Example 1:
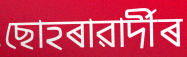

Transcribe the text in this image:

ছোহৰাৱাৰ্দীৰ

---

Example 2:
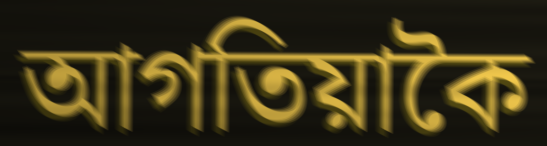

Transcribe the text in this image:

আগতিয়াকৈ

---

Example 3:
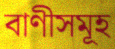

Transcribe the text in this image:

বাণীসমূহ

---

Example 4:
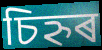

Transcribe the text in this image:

চিহ্নৰ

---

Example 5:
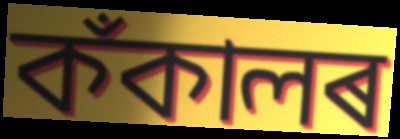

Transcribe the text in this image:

কঁকালৰ